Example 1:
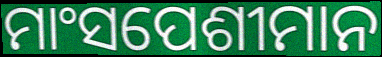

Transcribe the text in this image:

ମାଂସପେଶୀମାନ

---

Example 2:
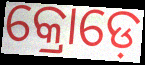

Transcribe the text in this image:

କ୍ରୋଡ଼େ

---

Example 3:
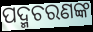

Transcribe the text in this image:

ପଦ୍ମଚରଣଙ୍କ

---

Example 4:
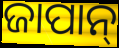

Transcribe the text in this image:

ଜାପାନ୍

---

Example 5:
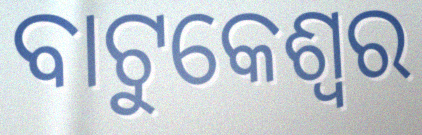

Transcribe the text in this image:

ବାଟୁକେଶ୍ୱର